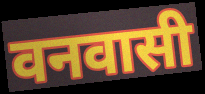
वनवासी